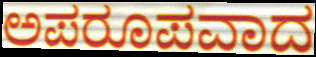
ಅಪರೂಪವಾದ